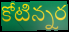
కోటిన్నర